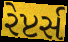
રેપ્ટર્સ